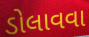
ડોલાવવા